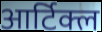
आर्टिक्ल